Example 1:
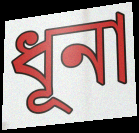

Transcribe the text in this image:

ধূনা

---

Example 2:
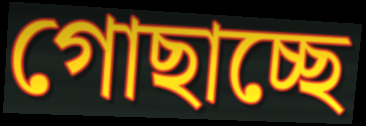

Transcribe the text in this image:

গোছাচ্ছে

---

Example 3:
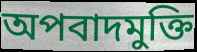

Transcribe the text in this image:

অপবাদমুক্তি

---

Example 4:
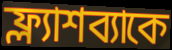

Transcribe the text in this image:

ফ্ল্যাশব্যাকে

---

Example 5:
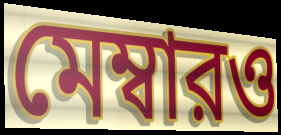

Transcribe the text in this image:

মেম্বারও